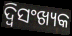
ଦ୍ୱିସଂଖ୍ୟକ